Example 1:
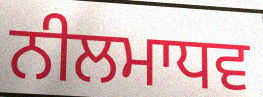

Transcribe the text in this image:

ਨੀਲਮਾਧਵ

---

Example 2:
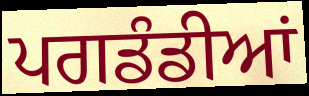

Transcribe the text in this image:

ਪਗਡੰਡੀਆਂ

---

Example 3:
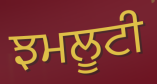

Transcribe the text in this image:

ਝਮਲੂਟੀ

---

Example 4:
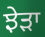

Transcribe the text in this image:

ਝੇੜਾ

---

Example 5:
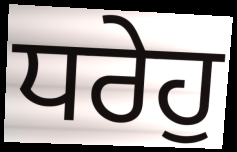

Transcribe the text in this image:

ਧਰੇਹੁ